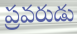
ప్రవరుడు